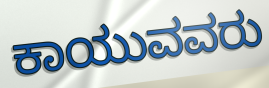
ಕಾಯುವವರು